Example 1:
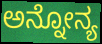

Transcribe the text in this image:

ಅನ್ನೋನ್ಯ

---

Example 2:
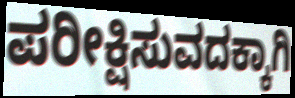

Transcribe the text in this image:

ಪರೀಕ್ಷಿಸುವದಕ್ಕಾಗಿ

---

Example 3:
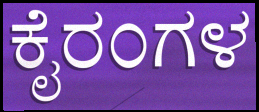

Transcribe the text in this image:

ಕೈರಂಗಳ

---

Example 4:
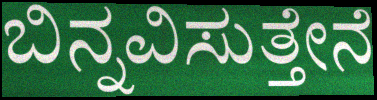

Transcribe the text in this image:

ಬಿನ್ನವಿಸುತ್ತೇನೆ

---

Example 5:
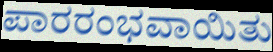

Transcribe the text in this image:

ಪಾರರಂಭವಾಯಿತು